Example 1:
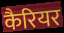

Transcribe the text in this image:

कैरियर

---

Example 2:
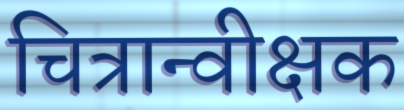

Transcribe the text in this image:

चित्रान्वीक्षक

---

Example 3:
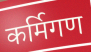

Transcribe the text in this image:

कर्मिगण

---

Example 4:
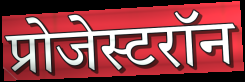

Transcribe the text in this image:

प्रोजेस्टरॉन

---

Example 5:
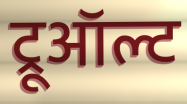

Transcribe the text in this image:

ट्रूऑल्ट